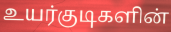
உயர்குடிகளின்